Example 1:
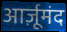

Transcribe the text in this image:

आर्ज़ूमंद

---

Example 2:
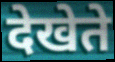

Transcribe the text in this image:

देखेते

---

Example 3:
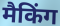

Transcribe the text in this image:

मैकिंग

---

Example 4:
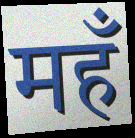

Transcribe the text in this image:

महँ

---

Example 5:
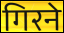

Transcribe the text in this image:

गिरने